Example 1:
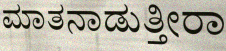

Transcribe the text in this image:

ಮಾತನಾಡುತ್ತೀರಾ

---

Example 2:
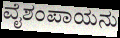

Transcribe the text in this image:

ವೈಶಂಪಾಯನು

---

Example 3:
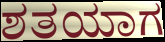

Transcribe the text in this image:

ಶತಯಾಗ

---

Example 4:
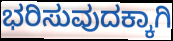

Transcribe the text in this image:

ಭರಿಸುವುದಕ್ಕಾಗಿ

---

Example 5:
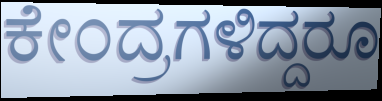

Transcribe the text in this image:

ಕೇಂದ್ರಗಳಿದ್ದರೂ